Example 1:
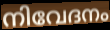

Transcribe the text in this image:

നിവേദനം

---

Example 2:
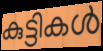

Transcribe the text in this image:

കുട്ടികൾ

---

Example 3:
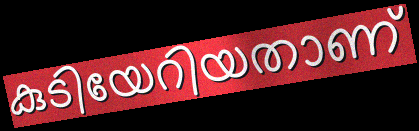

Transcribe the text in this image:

കുടിയേറിയതാണ്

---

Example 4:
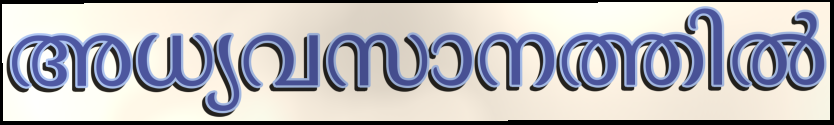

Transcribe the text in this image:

അധ്യവസാനത്തിൽ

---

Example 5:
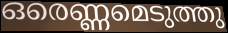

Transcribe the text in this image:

ഒരെണ്ണമെടുത്തു